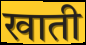
खाती